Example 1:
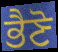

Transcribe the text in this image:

ਭੈਣੋ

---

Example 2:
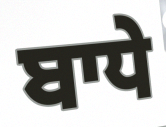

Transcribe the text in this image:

ਬਾਧੇ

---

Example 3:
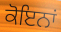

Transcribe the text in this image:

ਕੋਇਨਾਂ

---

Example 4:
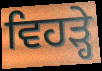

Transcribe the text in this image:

ਵਿਹੜ੍ਹੇ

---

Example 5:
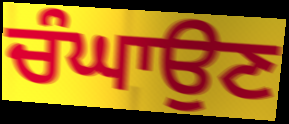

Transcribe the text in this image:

ਚੰਘਾਉਣ